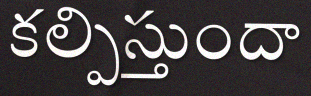
కల్పిస్తుందా